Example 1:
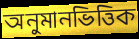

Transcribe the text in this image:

অনুমানভিত্তিক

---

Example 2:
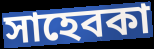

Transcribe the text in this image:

সাহেবকা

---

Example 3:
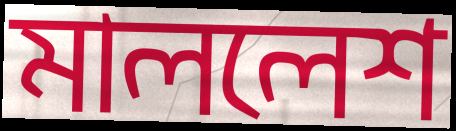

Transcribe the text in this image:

মাললেশ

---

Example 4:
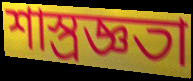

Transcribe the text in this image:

শাস্ত্রজ্ঞতা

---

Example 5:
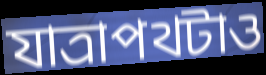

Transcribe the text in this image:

যাত্রাপথটাও